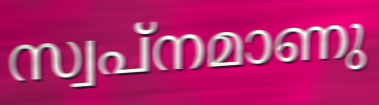
സ്വപ്നമാണു